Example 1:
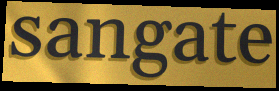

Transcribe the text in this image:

sangate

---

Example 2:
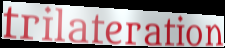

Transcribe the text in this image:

trilateration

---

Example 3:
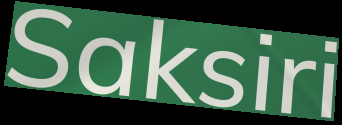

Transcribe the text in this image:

Saksiri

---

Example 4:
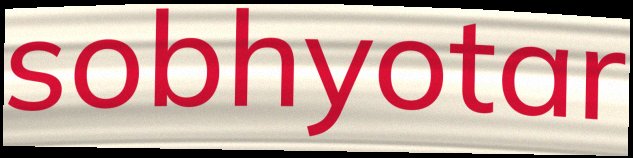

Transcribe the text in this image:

sobhyotar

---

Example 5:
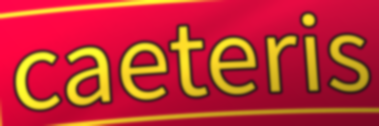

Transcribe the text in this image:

caeteris